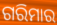
ଗରିମାର